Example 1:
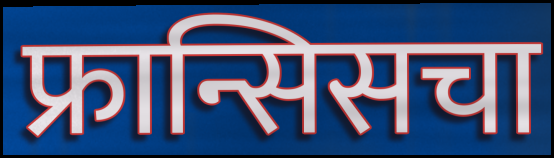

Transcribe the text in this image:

फ्रान्सिसचा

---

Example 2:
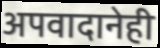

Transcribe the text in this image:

अपवादानेही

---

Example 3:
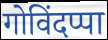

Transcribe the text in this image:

गोविंदप्पा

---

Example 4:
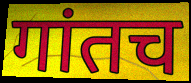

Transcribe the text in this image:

गांतच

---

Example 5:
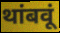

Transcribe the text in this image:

थांबवूं